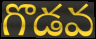
గొడవ